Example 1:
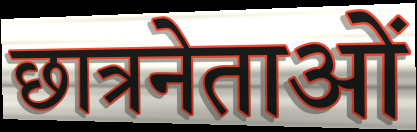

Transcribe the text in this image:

छात्रनेताओं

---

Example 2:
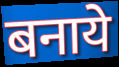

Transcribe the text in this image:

बनाये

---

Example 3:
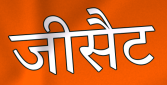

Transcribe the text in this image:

जीसैट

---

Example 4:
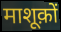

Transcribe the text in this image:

माशूक़ों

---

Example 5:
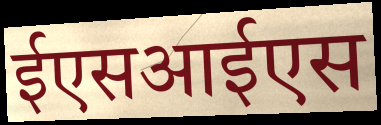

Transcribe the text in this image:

ईएसआईएस